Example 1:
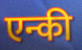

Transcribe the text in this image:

एन्की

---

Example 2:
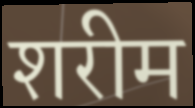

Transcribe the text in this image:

शरीम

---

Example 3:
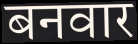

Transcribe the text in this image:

बनवार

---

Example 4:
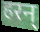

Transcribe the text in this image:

हरन्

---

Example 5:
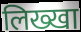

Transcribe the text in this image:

लिख्खा